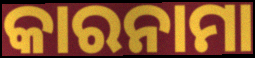
କାରନାମା